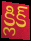
క్లిక్